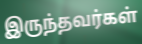
இருந்தவர்கள்